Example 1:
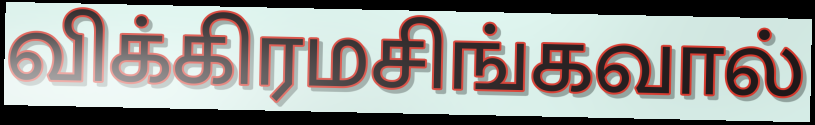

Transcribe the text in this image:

விக்கிரமசிங்கவால்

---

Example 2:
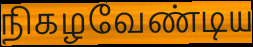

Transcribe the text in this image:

நிகழவேண்டிய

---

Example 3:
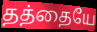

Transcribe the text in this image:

தத்தையே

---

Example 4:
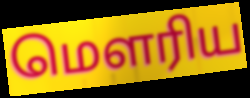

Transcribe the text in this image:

மௌரிய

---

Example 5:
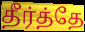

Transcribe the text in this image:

தீர்த்தே